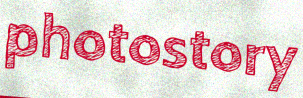
photostory